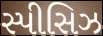
સ્પીસિઝ